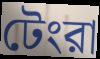
টেংরা